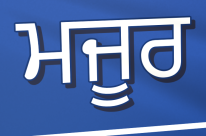
ਮਜੂਰ